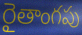
రైతాంగపు